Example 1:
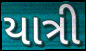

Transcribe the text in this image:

યાત્રી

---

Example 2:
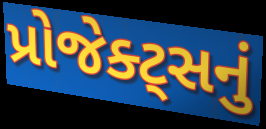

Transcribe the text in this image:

પ્રોજેક્ટ્સનું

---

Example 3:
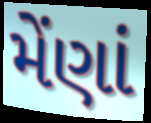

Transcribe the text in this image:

મેંણાં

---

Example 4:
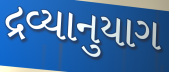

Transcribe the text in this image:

દ્રવ્યાનુયાગ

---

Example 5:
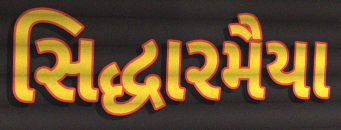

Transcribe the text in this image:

સિદ્ધારમૈયા